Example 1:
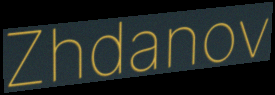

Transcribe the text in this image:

Zhdanov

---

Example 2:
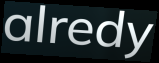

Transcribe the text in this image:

alredy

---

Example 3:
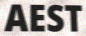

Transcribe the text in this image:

AEST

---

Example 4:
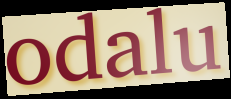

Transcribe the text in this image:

odalu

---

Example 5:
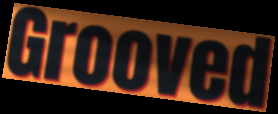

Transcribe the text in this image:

Grooved